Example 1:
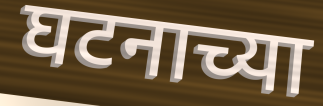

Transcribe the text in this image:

घटनाच्या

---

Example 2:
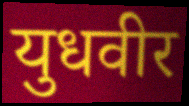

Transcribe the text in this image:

युधवीर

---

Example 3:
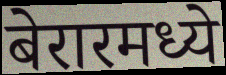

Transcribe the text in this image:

बेरारमध्ये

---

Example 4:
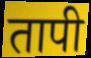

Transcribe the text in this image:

तापी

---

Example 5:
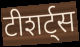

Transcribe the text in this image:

टीशर्ट्स